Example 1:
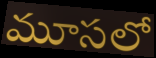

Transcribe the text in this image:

మూసలో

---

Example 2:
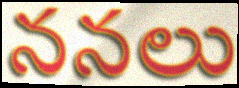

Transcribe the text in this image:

ననలు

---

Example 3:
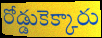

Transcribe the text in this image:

రోడ్డుకెక్కారు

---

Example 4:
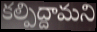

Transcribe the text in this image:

కల్పిద్దామని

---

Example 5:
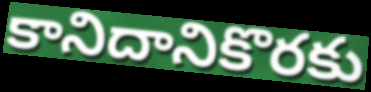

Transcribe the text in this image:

కానిదానికొరకు